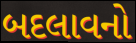
બદલાવનો